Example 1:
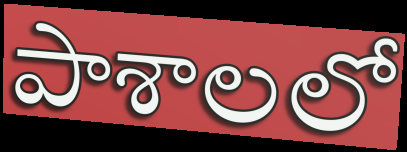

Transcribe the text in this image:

పాశాలలో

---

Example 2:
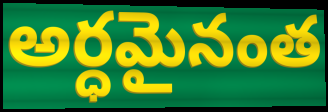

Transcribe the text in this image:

అర్ధమైనంత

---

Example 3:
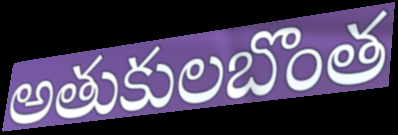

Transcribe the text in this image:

అతుకులబొంత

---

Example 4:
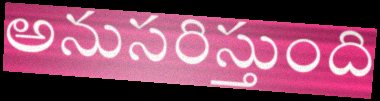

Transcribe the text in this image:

అనుసరిస్తుంది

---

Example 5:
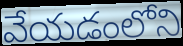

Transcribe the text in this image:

వేయడంలోని